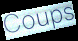
Coups